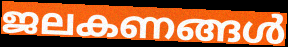
ജലകണങ്ങൾ